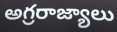
అగ్రరాజ్యాలు